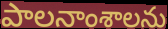
పాలనాంశాలను